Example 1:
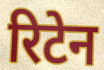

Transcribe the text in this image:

रिटेन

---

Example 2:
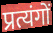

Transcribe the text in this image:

प्रत्यंगों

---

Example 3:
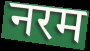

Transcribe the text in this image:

नरम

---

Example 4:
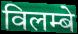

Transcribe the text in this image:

विलम्बे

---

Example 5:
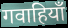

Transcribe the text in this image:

गवाहियाँ